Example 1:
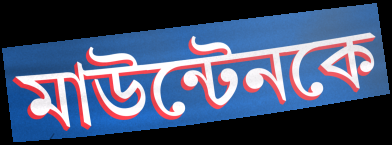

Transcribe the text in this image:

মাউন্টেনকে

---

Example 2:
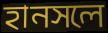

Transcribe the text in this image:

হানসলে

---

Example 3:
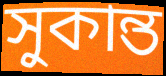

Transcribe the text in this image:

সুকান্ত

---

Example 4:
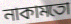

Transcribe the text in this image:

নাকামতো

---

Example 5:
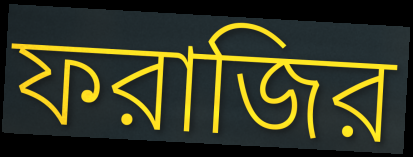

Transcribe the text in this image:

ফরাজির